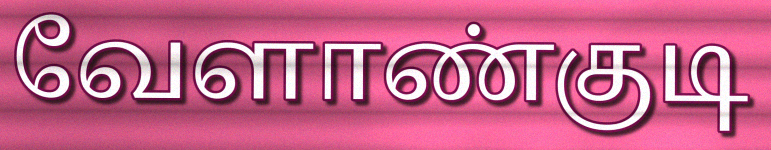
வேளாண்குடி